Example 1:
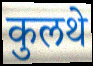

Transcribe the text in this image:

कुलथे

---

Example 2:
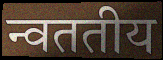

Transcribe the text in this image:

न्वततीय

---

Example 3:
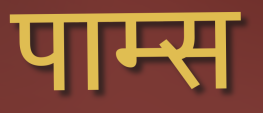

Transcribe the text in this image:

पाम्स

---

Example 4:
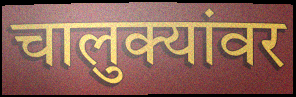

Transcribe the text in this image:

चालुक्यांवर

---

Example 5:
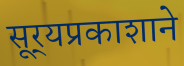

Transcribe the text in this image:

सूर्यप्रकाशाने